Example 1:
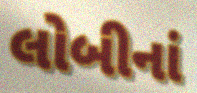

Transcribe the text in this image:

લોબીનાં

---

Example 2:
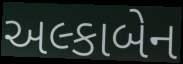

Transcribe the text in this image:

અલ્કાબેન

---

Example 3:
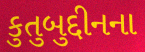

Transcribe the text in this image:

કુતુબુદ્દીનના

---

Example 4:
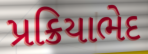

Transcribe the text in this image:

પ્રક્રિયાભેદ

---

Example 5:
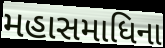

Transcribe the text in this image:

મહાસમાધિના